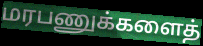
மரபணுக்களைத்